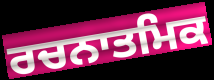
ਰਚਨਾਤਮਿਕ